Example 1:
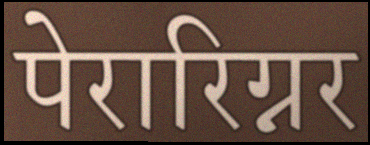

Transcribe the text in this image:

पेरारिग्नर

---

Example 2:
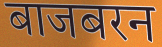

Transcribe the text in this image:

बाजबरन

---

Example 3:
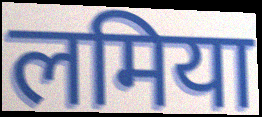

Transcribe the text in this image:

लमिया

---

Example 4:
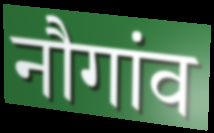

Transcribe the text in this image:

नौगांव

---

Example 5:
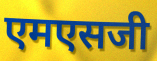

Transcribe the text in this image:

एमएसजी